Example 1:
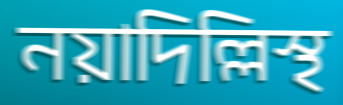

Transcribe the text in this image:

নয়াদিল্লিস্থ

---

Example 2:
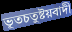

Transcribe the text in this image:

ভূতচতুষ্টয়বাদী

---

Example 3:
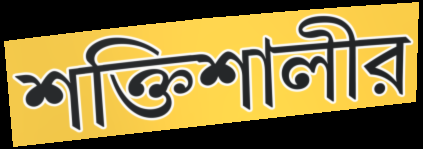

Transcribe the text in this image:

শক্তিশালীর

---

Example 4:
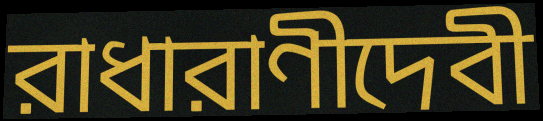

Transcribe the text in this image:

রাধারাণীদেবী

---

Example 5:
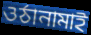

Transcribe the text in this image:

ওঠানামাই